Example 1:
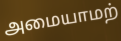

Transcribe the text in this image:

அமையாமற்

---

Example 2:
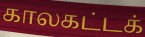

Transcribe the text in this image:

காலகட்டக்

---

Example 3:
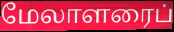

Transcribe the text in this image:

மேலாளரைப்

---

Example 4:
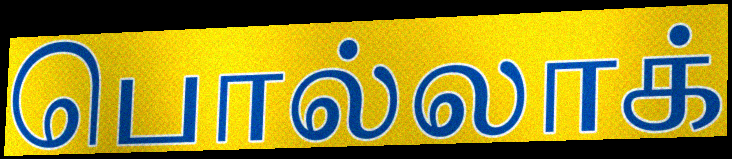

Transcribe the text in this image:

பொல்லாக்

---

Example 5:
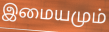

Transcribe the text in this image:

இமையமும்